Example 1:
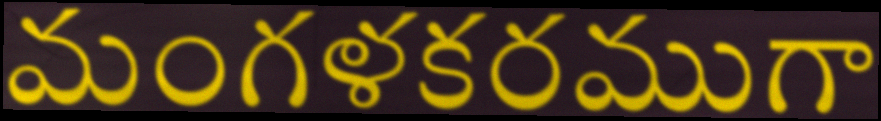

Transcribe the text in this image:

మంగళకరముగా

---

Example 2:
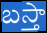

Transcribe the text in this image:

బస్తా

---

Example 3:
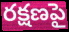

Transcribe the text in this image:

రక్షణపై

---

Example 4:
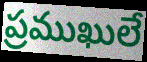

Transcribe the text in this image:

ప్రముఖులే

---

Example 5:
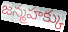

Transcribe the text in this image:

జన్మహక్కు